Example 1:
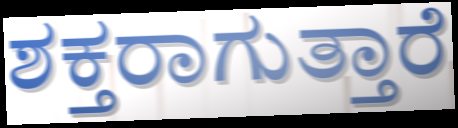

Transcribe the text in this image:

ಶಕ್ತರಾಗುತ್ತಾರೆ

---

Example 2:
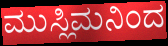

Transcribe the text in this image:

ಮುಸ್ಲಿಮನಿಂದ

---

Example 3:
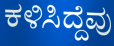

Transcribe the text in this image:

ಕಳಿಸಿದ್ದೆವು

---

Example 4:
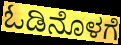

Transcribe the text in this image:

ಓಡಿನೊಳಗೆ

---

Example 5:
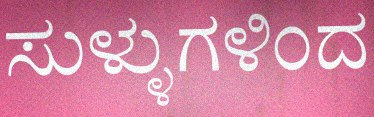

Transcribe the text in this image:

ಸುಳ್ಳುಗಳಿಂದ